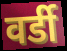
वर्डी